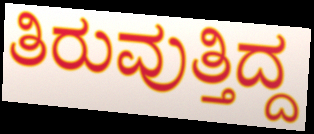
ತಿರುವುತ್ತಿದ್ದ